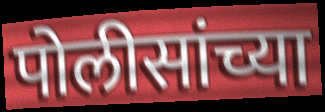
पोलीसांच्या